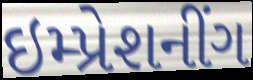
ઇમ્પ્રેશનીંગ